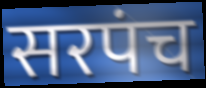
सरपंच